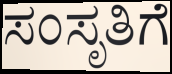
ಸಂಸೃತಿಗೆ